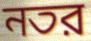
নতর